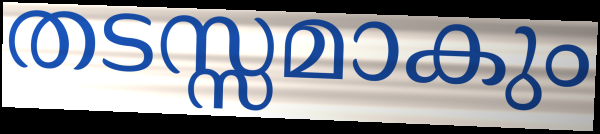
തടസ്സമാകും